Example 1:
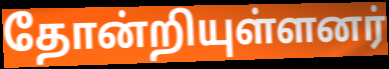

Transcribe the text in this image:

தோன்றியுள்ளனர்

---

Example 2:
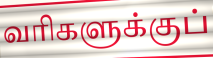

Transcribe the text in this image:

வரிகளுக்குப்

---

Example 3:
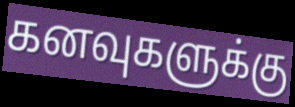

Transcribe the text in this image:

கனவுகளுக்கு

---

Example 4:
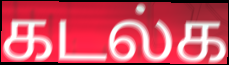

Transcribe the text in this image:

கடல்க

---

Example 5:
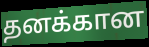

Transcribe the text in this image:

தனக்கான